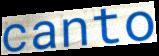
canto